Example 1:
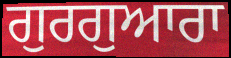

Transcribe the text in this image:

ਗੁਰਗੁਆਰਾ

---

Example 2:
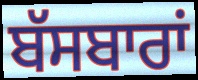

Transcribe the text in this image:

ਬੱਸਬਾਰਾਂ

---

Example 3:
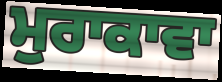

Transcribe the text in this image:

ਮੁਰਾਕਾਵਾ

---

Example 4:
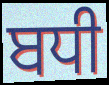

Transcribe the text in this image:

ਬਧੀ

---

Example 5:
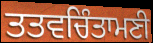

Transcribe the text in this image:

ਤਤਵਚਿੰਤਾਮਣੀ